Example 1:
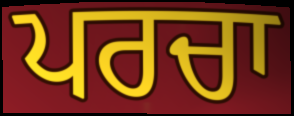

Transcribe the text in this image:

ਪਰਚਾ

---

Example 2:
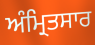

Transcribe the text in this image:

ਅੰਮ੍ਰਿਤਸਾਰ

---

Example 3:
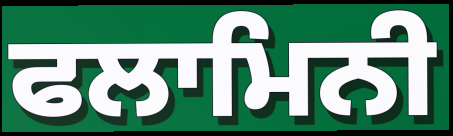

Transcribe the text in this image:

ਫਲਾਮਿਨੀ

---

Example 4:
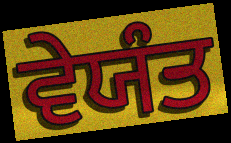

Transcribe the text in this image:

ਵੇਯੰਤ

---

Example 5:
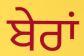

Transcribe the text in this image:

ਬੇਰਾਂ